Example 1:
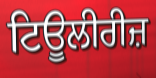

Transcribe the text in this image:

ਟਿਊਲੀਰੀਜ਼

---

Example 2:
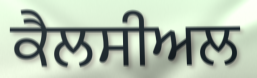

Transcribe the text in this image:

ਕੈਲਸੀਅਲ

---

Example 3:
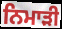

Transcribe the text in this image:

ਨਿਮਾੜੀ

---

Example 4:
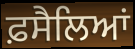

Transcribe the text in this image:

ਫ਼ਸੈਲਿਆਂ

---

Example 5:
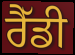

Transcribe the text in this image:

ਰੈੱਡੀ